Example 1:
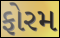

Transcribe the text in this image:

ફોરમ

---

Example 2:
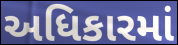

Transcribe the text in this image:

અધિકારમાં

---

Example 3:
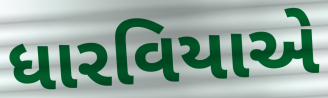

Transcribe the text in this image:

ધારવિયાએ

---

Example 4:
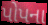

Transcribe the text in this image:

પોપના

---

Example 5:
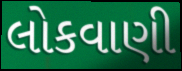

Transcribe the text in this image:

લોકવાણી